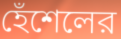
হেঁশেলের